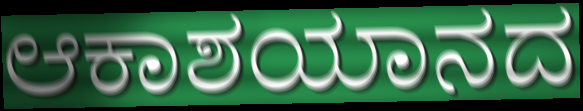
ಆಕಾಶಯಾನದ